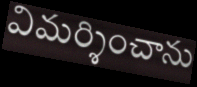
విమర్శించాను